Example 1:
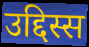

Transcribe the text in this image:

उद्दिस्स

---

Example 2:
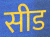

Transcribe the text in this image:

सीड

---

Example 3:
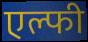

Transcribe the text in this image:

एल्फी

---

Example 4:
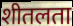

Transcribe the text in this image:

शीतलता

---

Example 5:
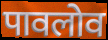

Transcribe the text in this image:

पावलोव